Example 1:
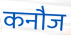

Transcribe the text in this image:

कनौज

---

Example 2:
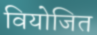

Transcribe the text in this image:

वियोजित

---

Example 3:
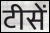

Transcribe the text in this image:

टीसें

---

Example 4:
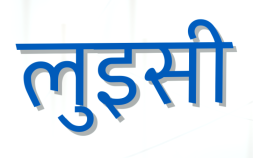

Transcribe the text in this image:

लुइसी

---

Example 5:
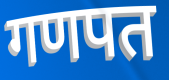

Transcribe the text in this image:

गणपत